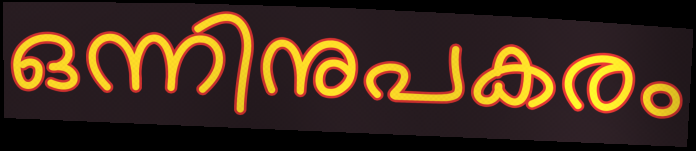
ഒന്നിനുപകരം